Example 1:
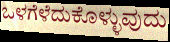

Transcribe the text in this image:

ಒಳಗೆಳೆದುಕೊಳ್ಳುವುದು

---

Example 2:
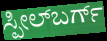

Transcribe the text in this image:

ಸ್ಪೀಲ್‌ಬರ್ಗ್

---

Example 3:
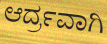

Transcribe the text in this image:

ಆರ್ದ್ರವಾಗಿ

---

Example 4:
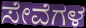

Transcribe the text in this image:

ಸೇವೆಗಳ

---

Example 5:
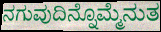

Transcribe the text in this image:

ನಗುವುದಿನ್ನೊಮ್ಮೆನುತ